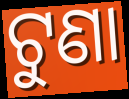
ଟୁଣା